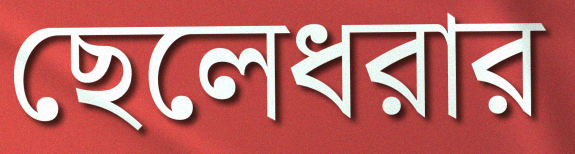
ছেলেধরার